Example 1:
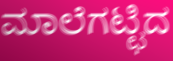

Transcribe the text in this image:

ಮಾಲೆಗಟ್ಟಿದ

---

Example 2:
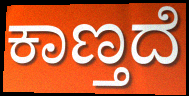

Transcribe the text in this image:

ಕಾಣ್ತದೆ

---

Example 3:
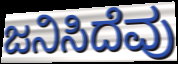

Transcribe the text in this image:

ಜನಿಸಿದೆವು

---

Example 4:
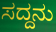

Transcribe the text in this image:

ಸದ್ದನು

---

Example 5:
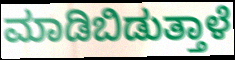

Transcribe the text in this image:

ಮಾಡಿಬಿಡುತ್ತಾಳೆ